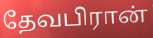
தேவபிரான்